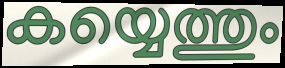
കയ്യെത്തും